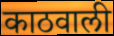
काठवाली